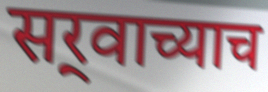
सर्वाच्याच